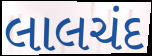
લાલચંદ